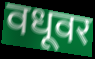
वधूवर